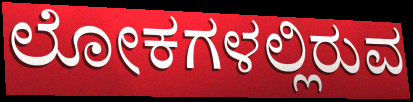
ಲೋಕಗಳಲ್ಲಿರುವ